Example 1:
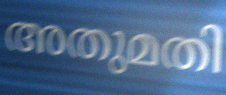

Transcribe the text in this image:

അതുമതി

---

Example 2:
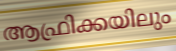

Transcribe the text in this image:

ആഫ്രിക്കയിലും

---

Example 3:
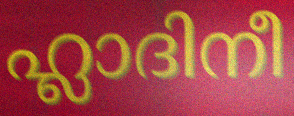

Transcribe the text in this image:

ഹ്ലാദിനീ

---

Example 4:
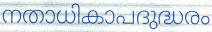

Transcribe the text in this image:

നതാധികാപദുദ്ധരം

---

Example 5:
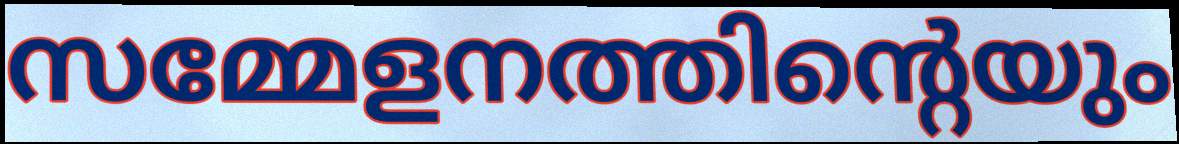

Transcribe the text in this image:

സമ്മേളനത്തിന്റെയും